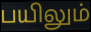
பயிலும்